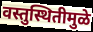
वस्तुस्थितीमुळे